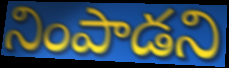
నింపాడని